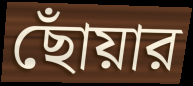
ছোঁয়ার